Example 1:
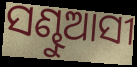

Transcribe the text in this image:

ସଣ୍ଢୁଆସୀ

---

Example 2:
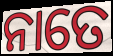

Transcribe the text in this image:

ନାତେ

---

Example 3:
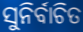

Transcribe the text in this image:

ସୁନିର୍ବାଚିତ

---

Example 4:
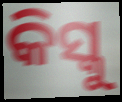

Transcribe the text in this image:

କିସ୍କୁ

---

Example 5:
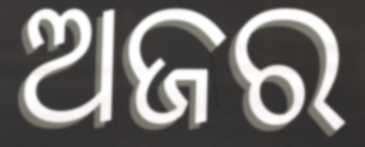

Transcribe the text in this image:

ଅଜର